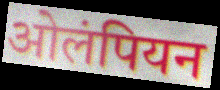
ओलंपियन